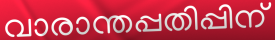
വാരാന്തപ്പതിപ്പിന്